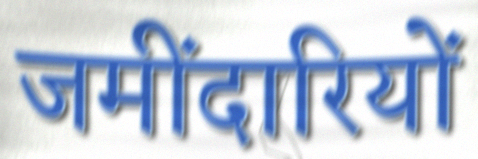
जमींदारियों